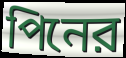
পিনের